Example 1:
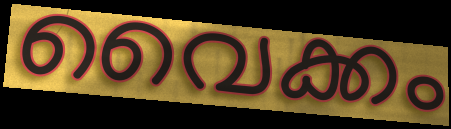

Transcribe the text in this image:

വൈക്കം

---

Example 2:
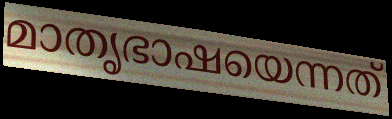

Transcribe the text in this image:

മാതൃഭാഷയെന്നത്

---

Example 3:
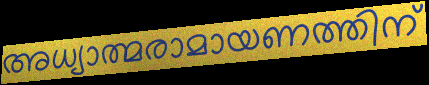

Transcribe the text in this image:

അധ്യാത്മരാമായണത്തിന്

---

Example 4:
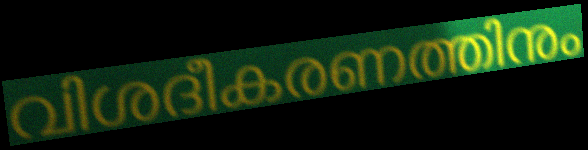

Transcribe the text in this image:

വിശദീകരണത്തിനും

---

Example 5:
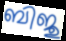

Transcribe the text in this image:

ബിജു